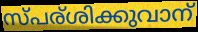
സ്പര്ശിക്കുവാന്